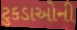
ટુકડાઓની